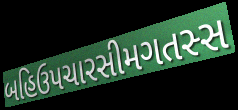
બહિઉપચારસીમગતસ્સ